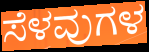
ಸೆಳವುಗಳ